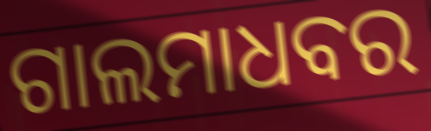
ଗାଲମାଧବର